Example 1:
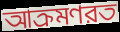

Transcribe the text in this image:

আক্রমণরত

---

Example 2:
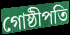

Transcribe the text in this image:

গোষ্ঠীপতি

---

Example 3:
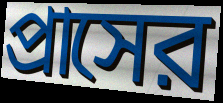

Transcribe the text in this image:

প্রাসের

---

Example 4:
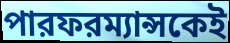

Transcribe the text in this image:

পারফরম্যান্সকেই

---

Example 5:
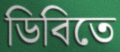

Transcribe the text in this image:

ডিবিতে